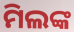
ମିଲଙ୍କ